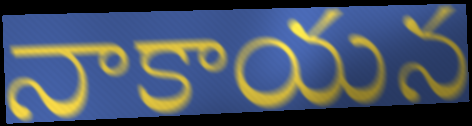
నాకాయన